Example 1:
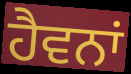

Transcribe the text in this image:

ਹੈਵਨਾਂ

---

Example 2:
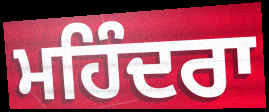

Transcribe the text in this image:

ਮਹਿੰਦਰਾ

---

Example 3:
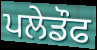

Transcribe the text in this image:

ਪਲੇਡੌਫ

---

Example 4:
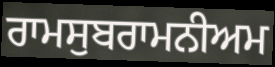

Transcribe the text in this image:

ਰਾਮਸੁਬਰਾਮਨੀਅਮ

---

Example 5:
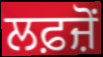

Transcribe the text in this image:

ਲਫ਼ਜ਼ੋਂ